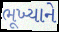
ભૂખ્યાને